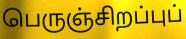
பெருஞ்சிறப்புப்